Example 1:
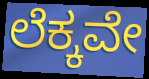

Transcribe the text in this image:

ಲೆಕ್ಕವೇ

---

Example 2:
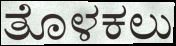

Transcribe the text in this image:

ತೊಳಕಲು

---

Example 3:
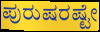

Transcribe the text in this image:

ಪುರುಷರಷ್ಟೇ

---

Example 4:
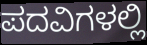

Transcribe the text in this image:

ಪದವಿಗಳಲ್ಲಿ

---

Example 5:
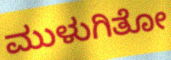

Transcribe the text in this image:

ಮುಳುಗಿತೋ